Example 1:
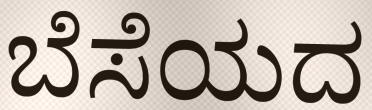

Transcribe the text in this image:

ಬೆಸೆಯದ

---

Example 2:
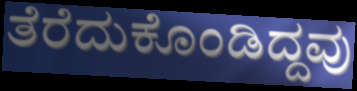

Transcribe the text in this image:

ತೆರೆದುಕೊಂಡಿದ್ದವು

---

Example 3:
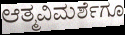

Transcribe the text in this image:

ಆತ್ಮವಿಮರ್ಶೆಗೂ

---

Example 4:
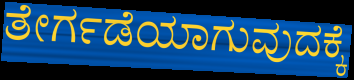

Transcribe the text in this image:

ತೇರ್ಗಡೆಯಾಗುವುದಕ್ಕೆ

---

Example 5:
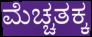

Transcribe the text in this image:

ಮೆಚ್ಚತಕ್ಕ